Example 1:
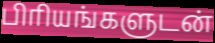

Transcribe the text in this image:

பிரியங்களுடன்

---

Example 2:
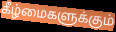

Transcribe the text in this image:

கீழ்மைகளுக்கும்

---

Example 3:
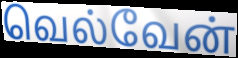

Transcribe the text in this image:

வெல்வேன்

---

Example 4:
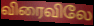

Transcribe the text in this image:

விரைவிலே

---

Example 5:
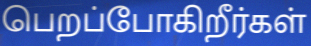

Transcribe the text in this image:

பெறப்போகிறீர்கள்